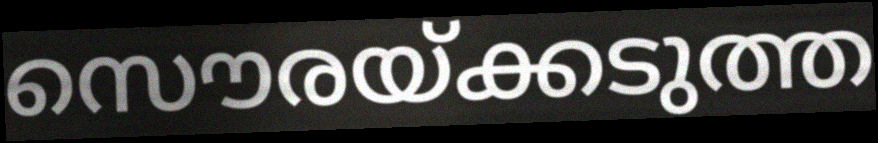
സൌരയ്ക്കടുത്ത